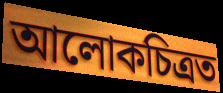
আলোকচিত্ৰত